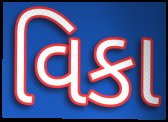
વિકા